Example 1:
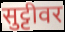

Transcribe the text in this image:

सुट्टीवर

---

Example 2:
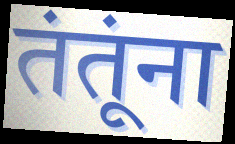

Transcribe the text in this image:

तंतूंना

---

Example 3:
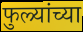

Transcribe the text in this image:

फुल्यांच्या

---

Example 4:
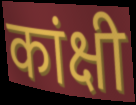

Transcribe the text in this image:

कांक्षी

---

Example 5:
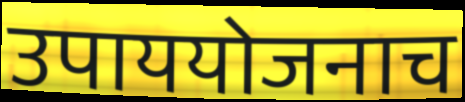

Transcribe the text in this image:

उपाययोजनाच